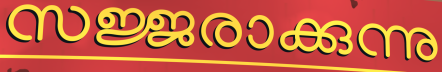
സജ്ജരാക്കുന്നു